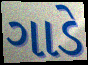
ગાડે